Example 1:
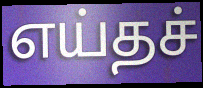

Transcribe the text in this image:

எய்தச்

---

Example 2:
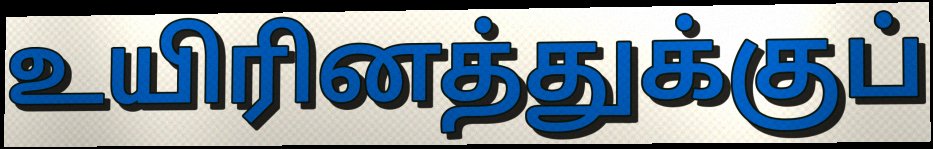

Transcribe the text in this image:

உயிரினத்துக்குப்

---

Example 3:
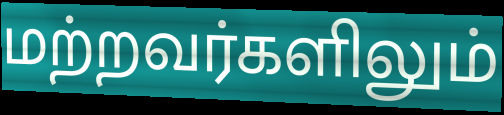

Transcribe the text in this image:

மற்றவர்களிலும்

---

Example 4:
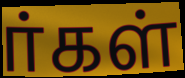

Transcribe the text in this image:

ர்கள்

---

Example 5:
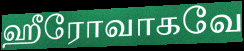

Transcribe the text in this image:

ஹீரோவாகவே